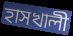
হাসখালী